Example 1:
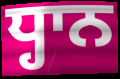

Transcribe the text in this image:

ਧ੍ਹਾਨ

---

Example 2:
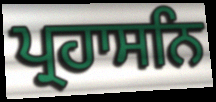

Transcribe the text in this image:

ਪ੍ਰਹਾਸਨਿ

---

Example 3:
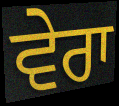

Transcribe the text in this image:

ਵੇਰਾ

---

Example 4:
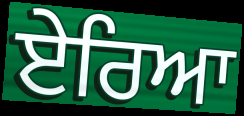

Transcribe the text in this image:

ਏਰਿਆ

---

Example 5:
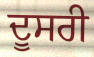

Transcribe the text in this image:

ਦੂਸਰੀ